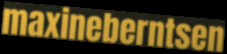
maxineberntsen